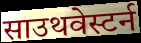
साउथवेस्टर्न